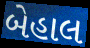
બેહાલ